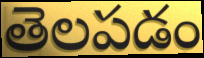
తెలపడం